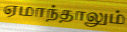
ஏமாந்தாலும்